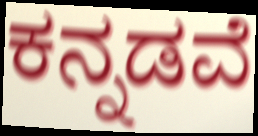
ಕನ್ನಡವೆ